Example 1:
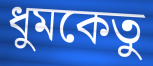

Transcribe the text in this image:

ধুমকেতু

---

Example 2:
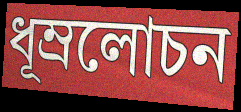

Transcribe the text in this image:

ধূম্রলোচন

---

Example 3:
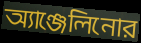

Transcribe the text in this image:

অ্যাঞ্জেলিনোর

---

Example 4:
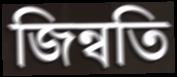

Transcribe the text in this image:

জিন্বতি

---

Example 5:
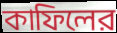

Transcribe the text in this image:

কাফিলের